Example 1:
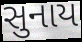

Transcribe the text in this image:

સુનાય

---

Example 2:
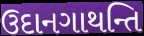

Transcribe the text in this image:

ઉદાનગાથન્તિ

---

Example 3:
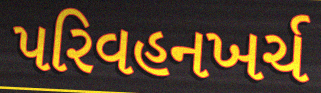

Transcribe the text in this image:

પરિવહનખર્ચ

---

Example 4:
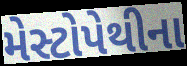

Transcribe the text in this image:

મેસ્ટોપેથીના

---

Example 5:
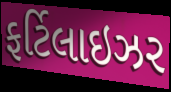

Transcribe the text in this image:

ફર્ટિલાઇઝર